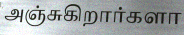
அஞ்சுகிறார்களா